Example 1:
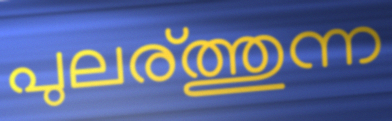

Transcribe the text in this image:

പുലര്ത്തുന്ന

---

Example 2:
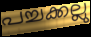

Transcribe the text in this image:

പച്ചക്കല്ലു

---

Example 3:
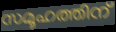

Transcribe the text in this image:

സമൂഹത്തിന്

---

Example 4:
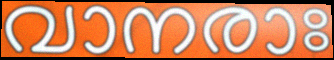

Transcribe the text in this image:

വാനരാഃ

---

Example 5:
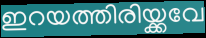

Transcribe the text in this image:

ഇറയത്തിരിയ്ക്കവേ